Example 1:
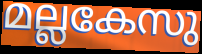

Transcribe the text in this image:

മല്ലകേസു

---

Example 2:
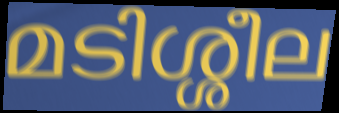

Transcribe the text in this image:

മടിശ്ശീല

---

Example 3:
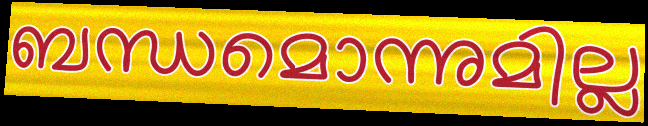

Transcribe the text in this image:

ബന്ധമൊന്നുമില്ല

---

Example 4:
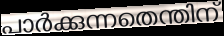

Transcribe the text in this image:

പാർക്കുന്നതെന്തിന്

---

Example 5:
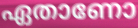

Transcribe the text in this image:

ഏതാണോ